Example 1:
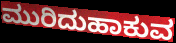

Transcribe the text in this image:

ಮುರಿದುಹಾಕುವ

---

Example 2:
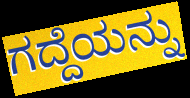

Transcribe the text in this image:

ಗದ್ದೆಯನ್ನು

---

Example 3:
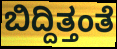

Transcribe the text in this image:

ಬಿದ್ದಿತ್ತಂತೆ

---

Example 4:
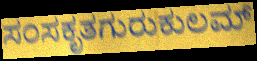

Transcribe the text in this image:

ಸಂಸಕೃತಗುರುಕುಲಮ್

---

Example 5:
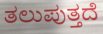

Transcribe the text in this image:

ತಲುಪುತ್ತದೆ